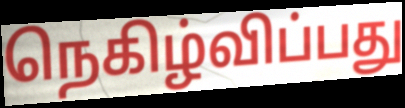
நெகிழ்விப்பது